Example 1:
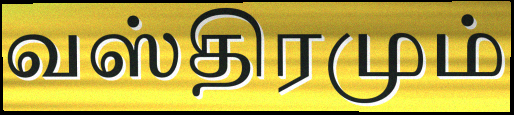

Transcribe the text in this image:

வஸ்திரமும்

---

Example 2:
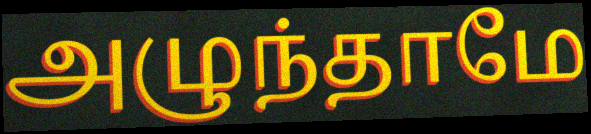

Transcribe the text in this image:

அழுந்தாமே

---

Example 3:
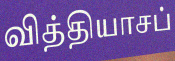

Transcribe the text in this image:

வித்தியாசப்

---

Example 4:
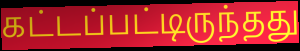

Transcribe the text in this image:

கட்டப்பட்டிருந்தது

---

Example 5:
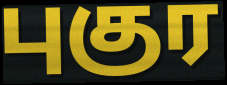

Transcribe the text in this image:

புகுர